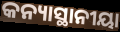
କନ୍ୟାସ୍ଥାନୀୟା